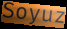
Soyuz